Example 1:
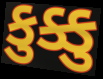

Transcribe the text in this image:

કુક્કુ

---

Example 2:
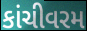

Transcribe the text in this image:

કાંચીવરમ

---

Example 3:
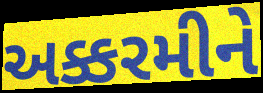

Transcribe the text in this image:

અક્કરમીને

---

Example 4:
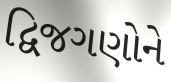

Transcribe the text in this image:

દ્વિજગણોને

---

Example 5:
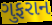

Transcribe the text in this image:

ગુફરાન